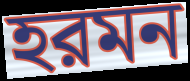
হরমন